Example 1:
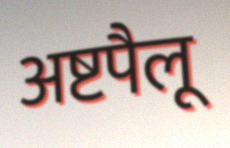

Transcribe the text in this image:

अष्टपैलू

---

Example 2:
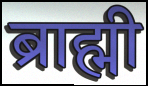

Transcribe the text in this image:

ब्राह्मी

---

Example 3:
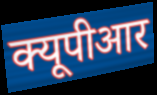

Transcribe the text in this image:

क्यूपीआर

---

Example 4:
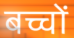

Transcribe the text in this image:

बच्चों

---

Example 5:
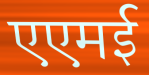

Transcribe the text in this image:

एएमई